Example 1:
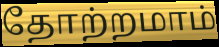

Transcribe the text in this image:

தோற்றமாம்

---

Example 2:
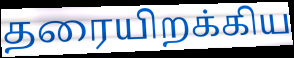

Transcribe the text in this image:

தரையிறக்கிய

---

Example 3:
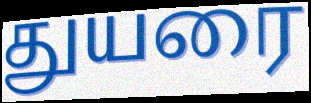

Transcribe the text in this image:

துயரை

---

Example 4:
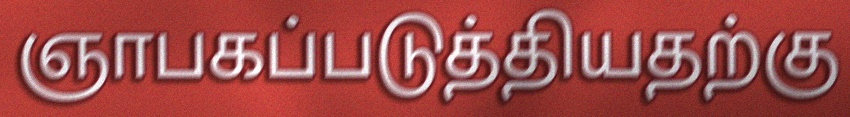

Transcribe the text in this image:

ஞாபகப்படுத்தியதற்கு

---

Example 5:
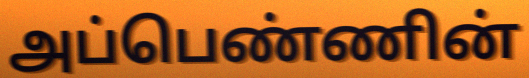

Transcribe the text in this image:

அப்பெண்ணின்